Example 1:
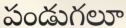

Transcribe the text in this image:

పండుగలూ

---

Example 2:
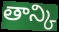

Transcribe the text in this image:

తాన్కి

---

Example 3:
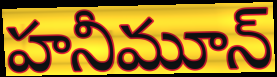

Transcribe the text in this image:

హనీమూన్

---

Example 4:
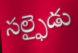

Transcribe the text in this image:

సల్ఫైడు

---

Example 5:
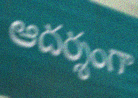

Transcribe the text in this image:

ఆదర్శంగా